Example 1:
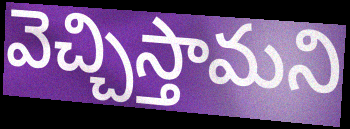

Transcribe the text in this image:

వెచ్చిస్తామని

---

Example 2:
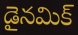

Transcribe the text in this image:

డైనమిక్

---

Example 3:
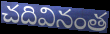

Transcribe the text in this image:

చదివినంత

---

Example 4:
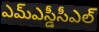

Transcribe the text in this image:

ఎమ్ఎస్డీసీఎల్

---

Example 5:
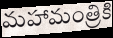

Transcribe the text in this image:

మహామంత్రికి